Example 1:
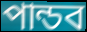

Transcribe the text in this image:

পান্ডব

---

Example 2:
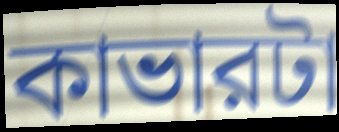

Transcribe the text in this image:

কাভারটা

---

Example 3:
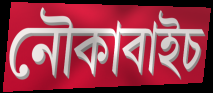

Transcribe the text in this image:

নৌকাবাইচ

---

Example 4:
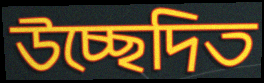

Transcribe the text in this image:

উচ্ছেদিত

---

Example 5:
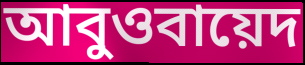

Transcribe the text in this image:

আবুওবায়েদ